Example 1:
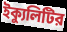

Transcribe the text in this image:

ইক্যুলিটির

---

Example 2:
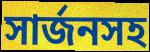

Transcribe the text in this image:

সার্জনসহ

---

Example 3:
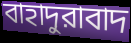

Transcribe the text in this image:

বাহাদুরাবাদ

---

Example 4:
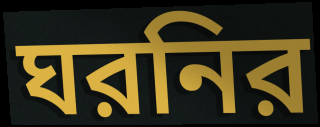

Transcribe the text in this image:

ঘরনির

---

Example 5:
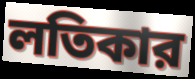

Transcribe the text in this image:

লতিকার